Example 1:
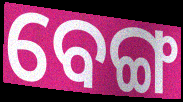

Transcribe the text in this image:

ବେଙ୍ଗ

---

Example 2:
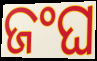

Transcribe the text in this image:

ଜଂଘ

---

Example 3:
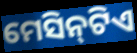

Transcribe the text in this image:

ମେସିନ୍‌ଟିଏ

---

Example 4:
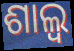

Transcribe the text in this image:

ଶାଲ୍ୱ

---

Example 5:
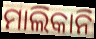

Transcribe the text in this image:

ମାଲିକାନି